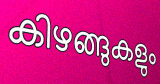
കിഴങ്ങുകളും